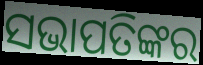
ସଭାପତିଙ୍କର